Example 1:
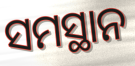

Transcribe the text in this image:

ସମସ୍ଥାନ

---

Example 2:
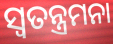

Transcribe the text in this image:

ସ୍ୱତନ୍ତ୍ରମନା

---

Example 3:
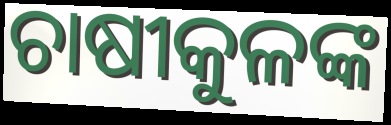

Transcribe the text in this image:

ଚାଷୀକୁଳଙ୍କ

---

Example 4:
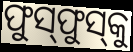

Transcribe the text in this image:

ଫୁସ୍‌ଫୁସ୍‌କୁ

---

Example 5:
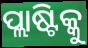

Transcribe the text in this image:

ପ୍ଲାଷ୍ଟିକ୍କୁ